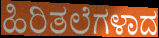
ಹಿರಿತಲೆಗಳಾದ